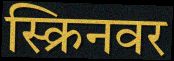
स्क्रिनवर